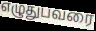
எழுதுபவரை